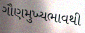
ગૌણમુખ્યભાવથી